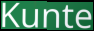
Kunte